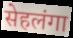
सेहलंगा